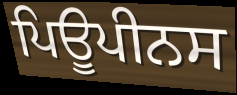
ਪਿਊਪੀਨਸ